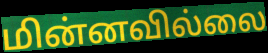
மின்னவில்லை